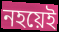
নহয়েই